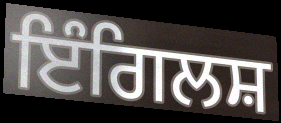
ਇੰਗਿਲਸ਼